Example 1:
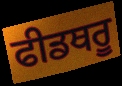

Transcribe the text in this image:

ਫੀਡਥਰੂ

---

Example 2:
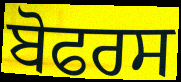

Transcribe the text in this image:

ਬੋਫਰਸ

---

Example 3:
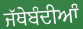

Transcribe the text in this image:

ਜੱਥੇਬੰਦੀਆੰ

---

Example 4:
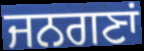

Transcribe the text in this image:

ਜਨਗਣਾਂ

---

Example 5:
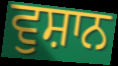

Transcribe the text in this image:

ਵੁਸ਼ਾਨ